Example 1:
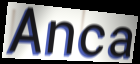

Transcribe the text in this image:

Anca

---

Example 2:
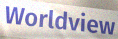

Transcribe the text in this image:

Worldview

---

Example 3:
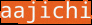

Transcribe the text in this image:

aajichi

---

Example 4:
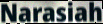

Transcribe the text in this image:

Narasiah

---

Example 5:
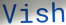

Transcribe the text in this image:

Vish